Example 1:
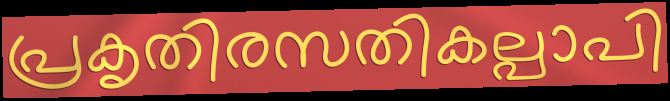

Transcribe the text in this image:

പ്രകൃതിരസതികല്പാപി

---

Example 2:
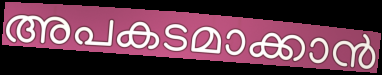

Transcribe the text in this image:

അപകടമാക്കാൻ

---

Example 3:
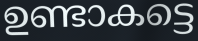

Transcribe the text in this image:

ഉണ്ടാകട്ടെ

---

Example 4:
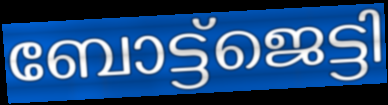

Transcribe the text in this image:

ബോട്ട്ജെട്ടി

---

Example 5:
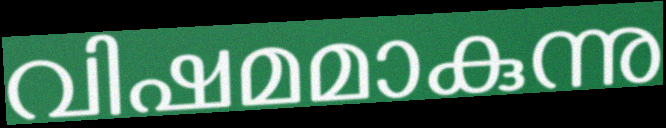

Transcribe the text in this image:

വിഷമമാകുന്നു